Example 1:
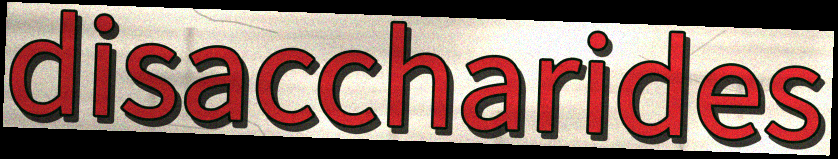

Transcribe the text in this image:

disaccharides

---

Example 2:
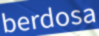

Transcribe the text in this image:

berdosa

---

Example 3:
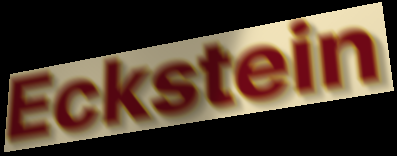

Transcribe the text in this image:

Eckstein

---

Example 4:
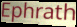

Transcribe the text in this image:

Ephrath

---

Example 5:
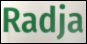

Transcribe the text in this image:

Radja